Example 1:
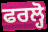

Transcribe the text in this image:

ਫਰਲ੍ਹੋ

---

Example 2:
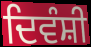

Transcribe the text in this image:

ਦਿਵੰਸ਼ੀ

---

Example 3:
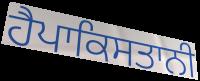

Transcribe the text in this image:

ਹੈਪਾਕਿਸਤਾਨੀ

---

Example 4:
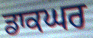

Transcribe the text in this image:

ਡਾਕਘਰ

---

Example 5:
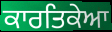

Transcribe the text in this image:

ਕਾਰਤਿਕੇਆ